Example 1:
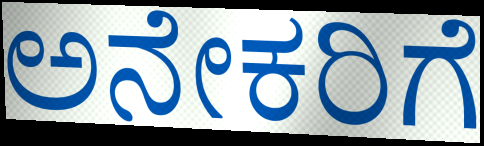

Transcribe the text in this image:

ಅನೇಕರಿಗೆ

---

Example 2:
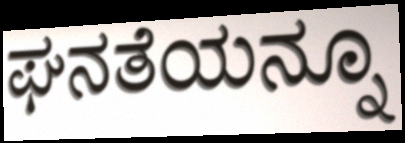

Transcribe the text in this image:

ಘನತೆಯನ್ನೂ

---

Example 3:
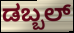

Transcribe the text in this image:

ಡಬ್ಬಲ್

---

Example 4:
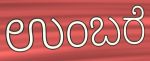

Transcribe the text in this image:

ಉಂಬರೆ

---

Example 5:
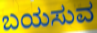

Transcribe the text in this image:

ಬಯಸುವ